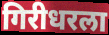
गिरीधरला